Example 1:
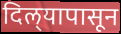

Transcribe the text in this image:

दिल्यापासून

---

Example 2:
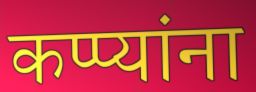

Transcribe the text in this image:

कप्प्यांना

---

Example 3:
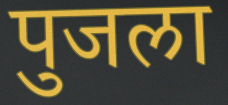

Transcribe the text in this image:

पुजला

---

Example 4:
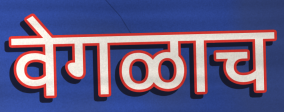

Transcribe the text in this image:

वेगळाच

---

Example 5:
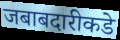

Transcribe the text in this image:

जबाबदारीकडे